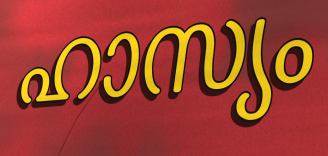
ഹാസ്യം